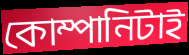
কোম্পানিটাই